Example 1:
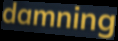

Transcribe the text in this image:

damning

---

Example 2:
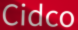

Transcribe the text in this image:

Cidco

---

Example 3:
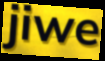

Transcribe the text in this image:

jiwe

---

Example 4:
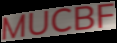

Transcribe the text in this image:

MUCBF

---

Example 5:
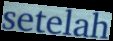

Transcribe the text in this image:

setelah